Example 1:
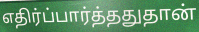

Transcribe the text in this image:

எதிர்ப்பார்த்ததுதான்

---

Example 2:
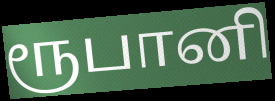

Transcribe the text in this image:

ரூபானி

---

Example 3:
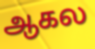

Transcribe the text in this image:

ஆகல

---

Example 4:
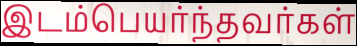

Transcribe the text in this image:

இடம்பெயர்ந்தவர்கள்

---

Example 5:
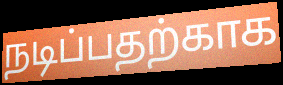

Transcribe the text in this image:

நடிப்பதற்காக